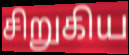
சிறுகிய